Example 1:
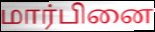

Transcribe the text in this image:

மார்பினை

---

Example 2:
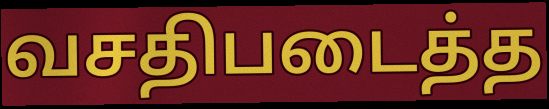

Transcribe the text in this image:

வசதிபடைத்த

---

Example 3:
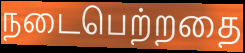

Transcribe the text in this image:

நடைபெற்றதை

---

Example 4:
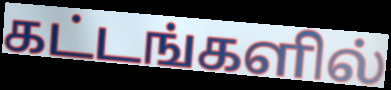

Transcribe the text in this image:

கட்டங்களில்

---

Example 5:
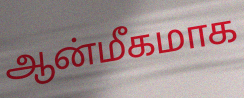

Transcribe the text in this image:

ஆன்மீகமாக